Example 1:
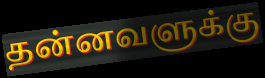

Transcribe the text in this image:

தன்னவளுக்கு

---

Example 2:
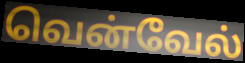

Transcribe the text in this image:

வென்வேல்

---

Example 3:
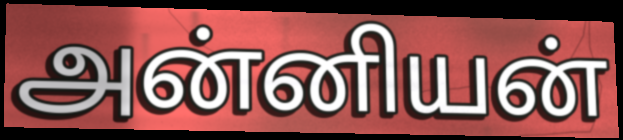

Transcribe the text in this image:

அன்னியன்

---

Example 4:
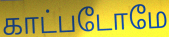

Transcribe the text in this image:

காட்படோமே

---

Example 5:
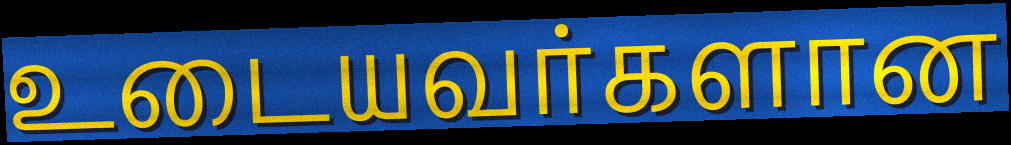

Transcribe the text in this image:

உடையவர்களான